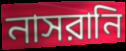
নাসরানি